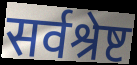
सर्वश्रेष्ट